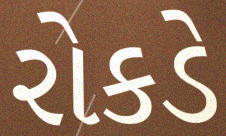
રોકડે